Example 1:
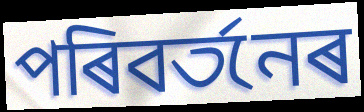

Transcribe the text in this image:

পৰিবৰ্তনেৰ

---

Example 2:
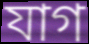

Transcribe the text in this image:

যাগ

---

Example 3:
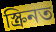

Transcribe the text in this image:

স্ক্ৰিনত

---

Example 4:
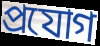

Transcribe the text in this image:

প্ৰযোগ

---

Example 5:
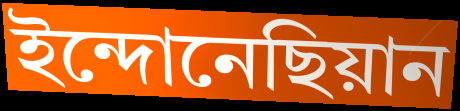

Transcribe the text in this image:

ইন্দোনেছিয়ান